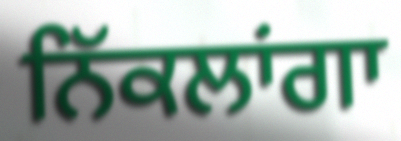
ਨਿੱਕਲਾਂਗਾ